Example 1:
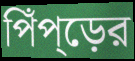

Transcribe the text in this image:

পিঁপ্ড়ের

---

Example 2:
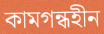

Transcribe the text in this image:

কামগন্ধহীন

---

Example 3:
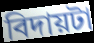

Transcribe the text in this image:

বিদায়টা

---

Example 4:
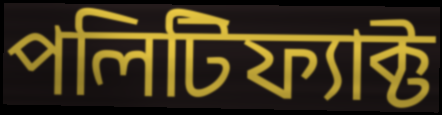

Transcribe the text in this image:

পলিটিফ্যাক্ট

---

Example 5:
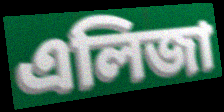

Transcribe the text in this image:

এলিজা